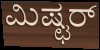
ಮಿಷ್ಟರ್